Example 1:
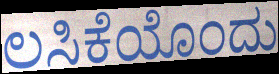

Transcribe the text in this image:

ಲಸಿಕೆಯೊಂದು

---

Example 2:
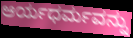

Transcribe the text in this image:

ಆರ್ಯಧರ್ಮವನ್ನು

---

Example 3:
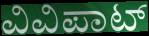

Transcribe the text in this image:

ವಿವಿಪಾಟ್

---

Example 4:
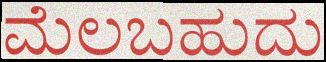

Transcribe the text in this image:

ಮೆಲಬಹುದು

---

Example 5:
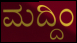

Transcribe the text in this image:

ಮದ್ದಿಂ